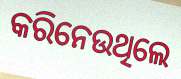
କରିନେଉଥିଲେ